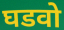
घडवो